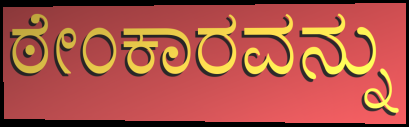
ಠೇಂಕಾರವನ್ನು